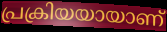
പ്രക്രിയയായാണ്